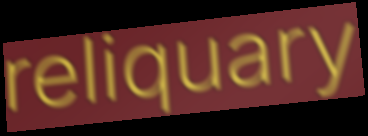
reliquary